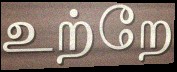
உற்றே